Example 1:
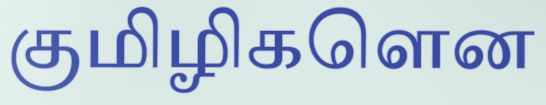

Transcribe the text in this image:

குமிழிகளென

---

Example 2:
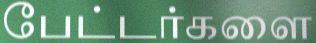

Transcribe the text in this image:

பேட்டர்களை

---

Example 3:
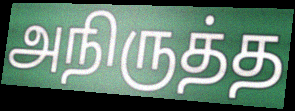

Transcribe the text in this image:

அநிருத்த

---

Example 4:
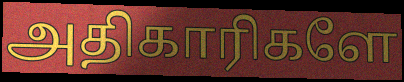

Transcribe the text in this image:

அதிகாரிகளே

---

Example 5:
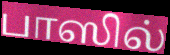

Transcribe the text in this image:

பாஸில்